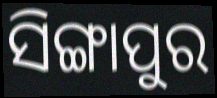
ସିଙ୍ଗାପୁର